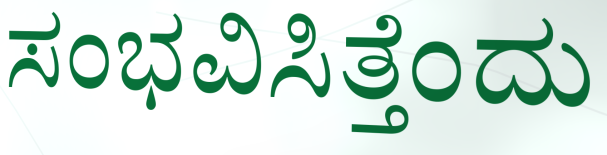
ಸಂಭವಿಸಿತ್ತೆಂದು